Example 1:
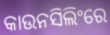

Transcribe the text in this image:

କାଉନସିଲିଂରେ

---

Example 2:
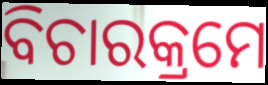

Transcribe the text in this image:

ବିଚାରକ୍ରମେ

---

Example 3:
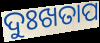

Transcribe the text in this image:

ଦୁଃଖତାପ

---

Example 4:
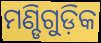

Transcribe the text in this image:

ମଣ୍ଡିଗୁଡ଼ିକ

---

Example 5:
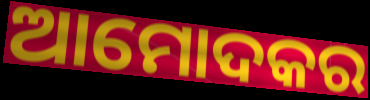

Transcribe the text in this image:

ଆମୋଦକର